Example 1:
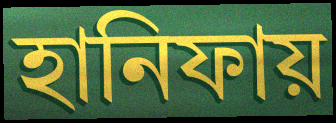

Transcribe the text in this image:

হানিফায়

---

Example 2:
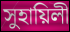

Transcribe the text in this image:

সুহায়িলী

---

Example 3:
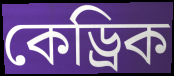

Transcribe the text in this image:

কেড্রিক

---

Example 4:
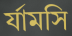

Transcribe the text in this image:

র্যামসি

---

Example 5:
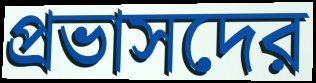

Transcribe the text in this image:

প্রভাসদের